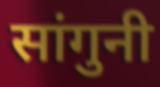
सांगुनी